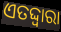
ଏତଦ୍ଦ୍ୱାରା